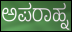
ಅಪರಾಹ್ನ